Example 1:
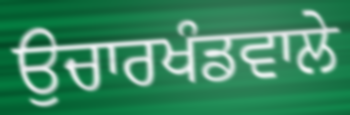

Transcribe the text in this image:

ਉਚਾਰਖੰਡਵਾਲੇ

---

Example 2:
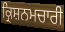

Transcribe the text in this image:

ਕ੍ਰਿਸ਼ਨਮਚਾਰੀ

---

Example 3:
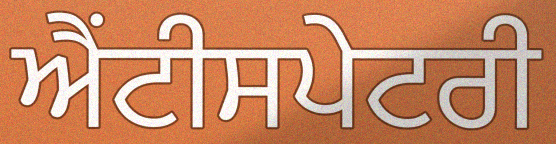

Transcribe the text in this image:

ਐਂਟੀਸਪੇਟਰੀ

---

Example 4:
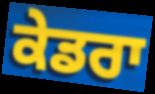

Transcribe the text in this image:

ਕੇਡਰਾ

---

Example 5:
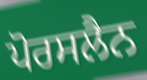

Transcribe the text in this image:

ਪੋਰਸਲੈਨ